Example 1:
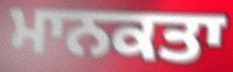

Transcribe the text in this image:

ਮਾਨਕਤਾ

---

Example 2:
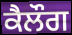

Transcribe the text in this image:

ਕੈਲੌਗ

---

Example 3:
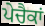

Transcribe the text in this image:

ਪੇਚੈਕਾਂ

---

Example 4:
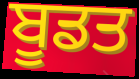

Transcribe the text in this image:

ਬੂਡਤ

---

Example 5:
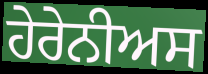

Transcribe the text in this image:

ਹੇਰੇਨੀਅਸ